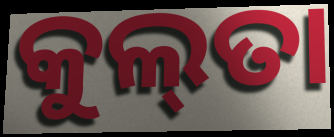
କୁଲ୍‌ତା